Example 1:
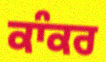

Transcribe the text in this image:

ਕਾੰਕਰ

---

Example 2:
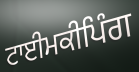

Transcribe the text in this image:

ਟਾਈਮਕੀਪਿੰਗ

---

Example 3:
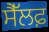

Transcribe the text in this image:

ਸੈੱਲਫ਼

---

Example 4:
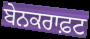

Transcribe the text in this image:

ਬੇਨਕਰਾਫ਼ਟ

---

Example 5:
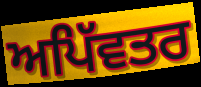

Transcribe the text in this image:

ਅਪਿੱਵਤਰ